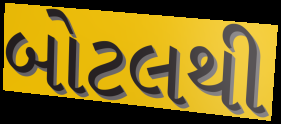
બોટલથી